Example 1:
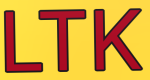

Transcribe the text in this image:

LTK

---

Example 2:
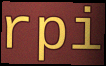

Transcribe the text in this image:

rpi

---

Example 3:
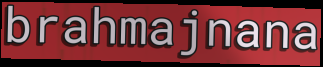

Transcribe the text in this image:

brahmajnana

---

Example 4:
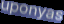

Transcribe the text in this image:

uponyas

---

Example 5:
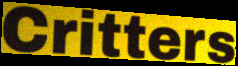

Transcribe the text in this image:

Critters